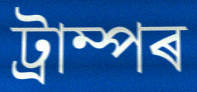
ট্ৰাম্পৰ